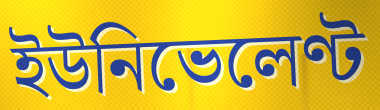
ইউনিভেলেণ্ট